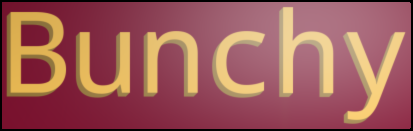
Bunchy